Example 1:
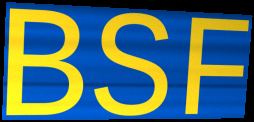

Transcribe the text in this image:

BSF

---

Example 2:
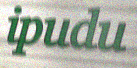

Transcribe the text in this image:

ipudu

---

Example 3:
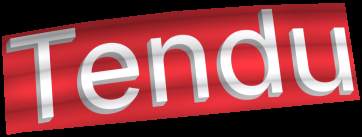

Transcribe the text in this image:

Tendu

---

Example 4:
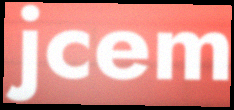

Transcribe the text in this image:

jcem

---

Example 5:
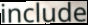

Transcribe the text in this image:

include